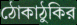
ঠোকাঠুকির